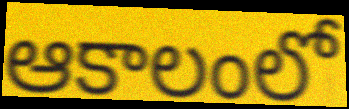
ఆకాలంలో